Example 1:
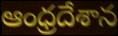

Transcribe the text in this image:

ఆంధ్రదేశాన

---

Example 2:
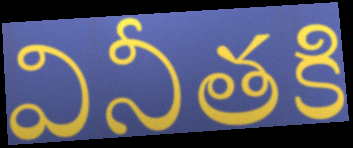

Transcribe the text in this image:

వినీతకి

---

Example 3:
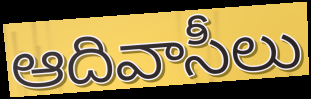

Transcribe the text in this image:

ఆదివాసీలు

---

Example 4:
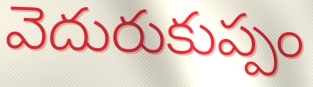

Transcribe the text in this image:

వెదురుకుప్పం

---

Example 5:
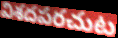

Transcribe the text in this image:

విశదపరచుట